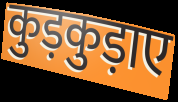
कुड़कुड़ाए